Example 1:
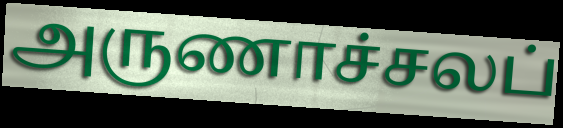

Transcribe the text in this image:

அருணாச்சலப்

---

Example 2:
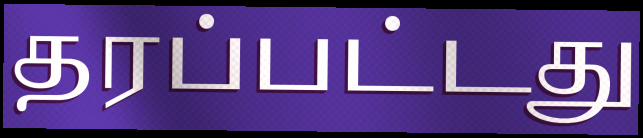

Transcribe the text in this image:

தரப்பட்டது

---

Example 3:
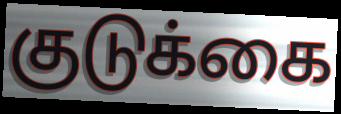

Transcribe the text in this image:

குடுக்கை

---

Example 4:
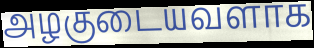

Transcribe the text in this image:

அழகுடையவளாக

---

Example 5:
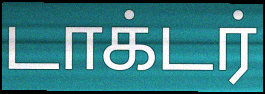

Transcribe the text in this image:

டாக்டர்